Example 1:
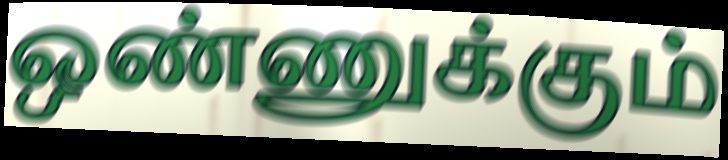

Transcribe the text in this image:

ஒண்ணுக்கும்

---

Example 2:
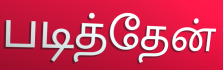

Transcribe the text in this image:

படித்தேன்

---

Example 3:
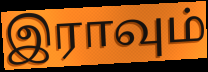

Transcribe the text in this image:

இராவும்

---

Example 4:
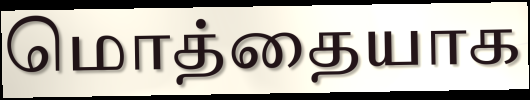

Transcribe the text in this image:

மொத்தையாக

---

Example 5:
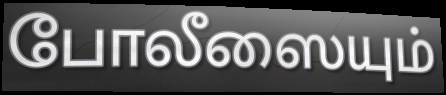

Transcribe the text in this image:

போலீஸையும்